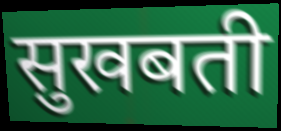
सुखबती